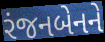
રંજનબેનને